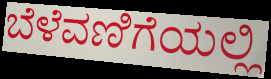
ಬೆಳೆವಣಿಗೆಯಲ್ಲಿ